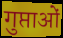
गुप्ताओं